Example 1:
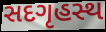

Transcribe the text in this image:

સદગૃહસ્થ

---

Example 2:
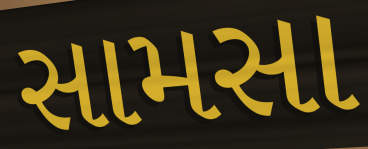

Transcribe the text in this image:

સામસા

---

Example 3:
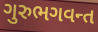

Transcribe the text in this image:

ગુરુભગવન્ત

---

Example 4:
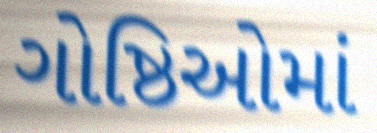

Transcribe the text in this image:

ગોષ્ઠિઓમાં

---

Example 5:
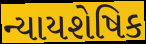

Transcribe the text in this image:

ન્યાયશેષિક